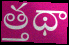
త్తథా